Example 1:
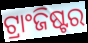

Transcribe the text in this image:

ଟ୍ରାଂଜିଷ୍ଟର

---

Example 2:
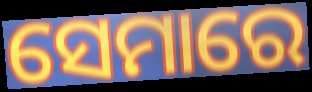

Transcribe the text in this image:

ସେମାରେ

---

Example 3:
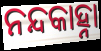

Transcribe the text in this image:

ନନ୍ଦକାହ୍ନା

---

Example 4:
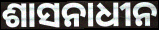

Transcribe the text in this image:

ଶାସନାଧୀନ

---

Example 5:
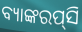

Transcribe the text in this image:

ବ୍ୟାଙ୍କରପ୍‌ସି